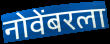
नोवेंबरला